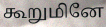
கூறுமினே